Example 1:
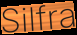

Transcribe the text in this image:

Silfra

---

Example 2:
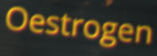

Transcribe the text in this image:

Oestrogen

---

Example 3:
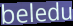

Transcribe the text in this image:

beledu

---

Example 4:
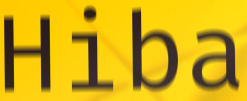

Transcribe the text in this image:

Hiba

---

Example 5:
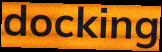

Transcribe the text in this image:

docking